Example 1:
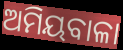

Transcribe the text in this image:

ଅମିୟବାଳା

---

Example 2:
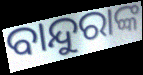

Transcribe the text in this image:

ବାନ୍ଦୁରାଙ୍କ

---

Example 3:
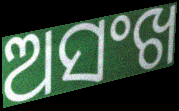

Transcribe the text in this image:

ଅସଂଖ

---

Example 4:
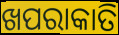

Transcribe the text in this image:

ଖପରାକାତି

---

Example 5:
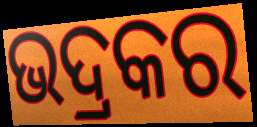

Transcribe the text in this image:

ଭଦ୍ରକର